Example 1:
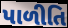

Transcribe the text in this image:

પાળીતિ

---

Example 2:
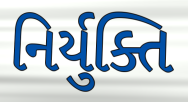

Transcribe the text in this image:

નિર્યુક્તિ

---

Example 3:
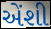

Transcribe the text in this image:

એંશી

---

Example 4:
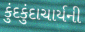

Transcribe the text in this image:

કુંદકુંદાચાર્યની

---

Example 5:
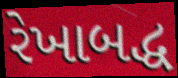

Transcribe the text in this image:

રેખાબદ્ધ